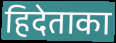
हिदेताका